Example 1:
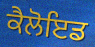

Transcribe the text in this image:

ਕੈਲੋਇਡ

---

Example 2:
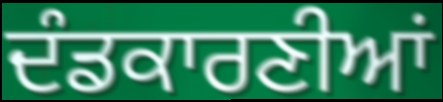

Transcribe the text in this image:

ਦੰਡਕਾਰਣੀਆਂ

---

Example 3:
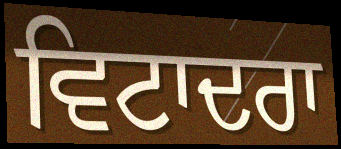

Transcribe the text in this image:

ਵਿਟਾਦਰਾ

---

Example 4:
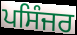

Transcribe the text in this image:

ਪਸਿੰਜਰ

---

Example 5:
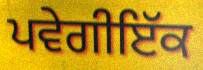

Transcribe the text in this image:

ਪਵੇਗੀਇੱਕ